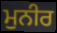
ਮੁਨੀਰ